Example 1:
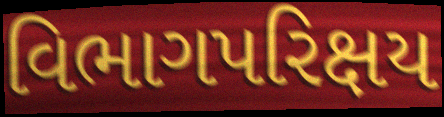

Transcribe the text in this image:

વિભાગપરિક્ષય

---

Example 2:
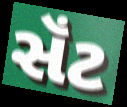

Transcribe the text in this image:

સૅંટ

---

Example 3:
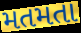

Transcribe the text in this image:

મતમતા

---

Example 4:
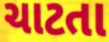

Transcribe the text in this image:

ચાટતા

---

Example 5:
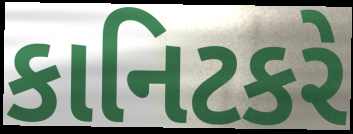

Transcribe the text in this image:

કાનિટકરે